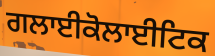
ਗਲਾਈਕੋਲਾਈਟਿਕ